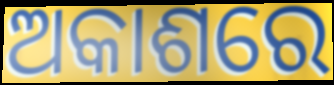
ଅକାଶରେ